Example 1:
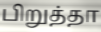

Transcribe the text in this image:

பிறுத்தா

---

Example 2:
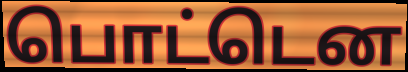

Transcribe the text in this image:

பொட்டென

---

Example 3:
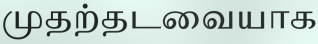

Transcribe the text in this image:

முதற்தடவையாக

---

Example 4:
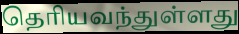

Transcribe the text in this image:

தெரியவந்துள்ளது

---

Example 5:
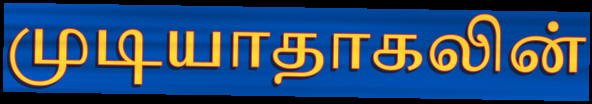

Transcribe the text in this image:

முடியாதாகலின்